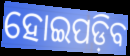
ହୋଇପଡ଼ିବ